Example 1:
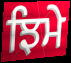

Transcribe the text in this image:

ਝਿਮੇ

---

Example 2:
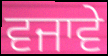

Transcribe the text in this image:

ਵਜਾਵੇ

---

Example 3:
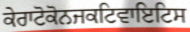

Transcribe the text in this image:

ਕੇਰਾਟੋਕੋਨਜਕਟਿਵਾਇਟਿਸ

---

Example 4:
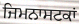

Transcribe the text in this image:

ਜਿਮਨਾਸਟਕਾਂ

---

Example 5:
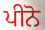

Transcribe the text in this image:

ਪੀਨੋ